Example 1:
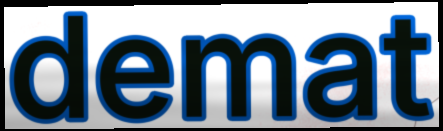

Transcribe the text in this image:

demat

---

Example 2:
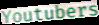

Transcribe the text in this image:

Youtubers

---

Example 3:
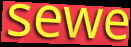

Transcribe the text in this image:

sewe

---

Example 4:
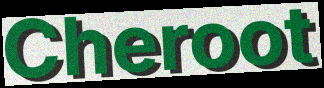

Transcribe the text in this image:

Cheroot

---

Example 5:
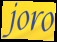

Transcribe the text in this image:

joro